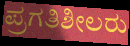
ಪ್ರಗತಿಶೀಲರು